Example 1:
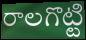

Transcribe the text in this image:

రాలగొట్టి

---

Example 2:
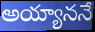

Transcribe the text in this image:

అయ్యాననే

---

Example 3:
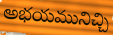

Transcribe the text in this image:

అభయమునిచ్చి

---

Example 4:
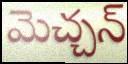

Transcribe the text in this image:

మెచ్చన్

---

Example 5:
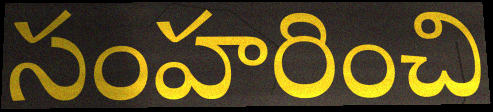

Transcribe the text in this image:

సంహరించి